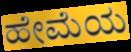
ಹೇಮೆಯ